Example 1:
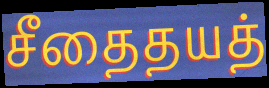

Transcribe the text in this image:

சீதைதயத்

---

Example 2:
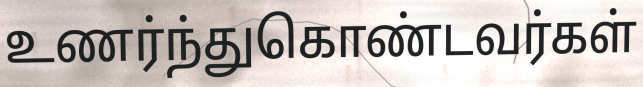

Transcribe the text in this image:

உணர்ந்துகொண்டவர்கள்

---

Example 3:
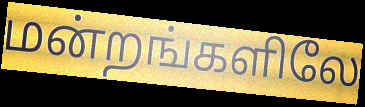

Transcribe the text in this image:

மன்றங்களிலே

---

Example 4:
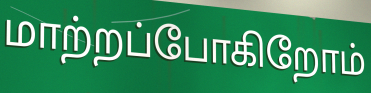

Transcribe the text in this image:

மாற்றப்போகிறோம்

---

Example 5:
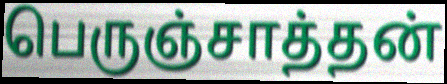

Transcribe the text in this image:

பெருஞ்சாத்தன்